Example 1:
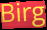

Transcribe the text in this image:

Birg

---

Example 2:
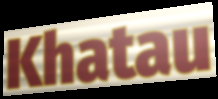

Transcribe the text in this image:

Khatau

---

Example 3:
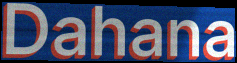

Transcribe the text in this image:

Dahana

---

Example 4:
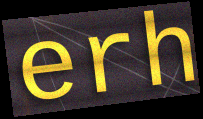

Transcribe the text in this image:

erh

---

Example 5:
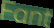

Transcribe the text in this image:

Fant